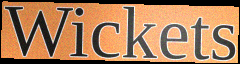
Wickets